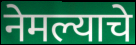
नेमल्याचे